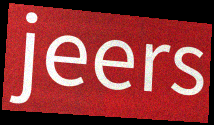
jeers